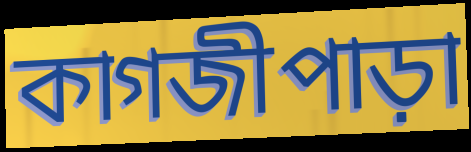
কাগজীপাড়া